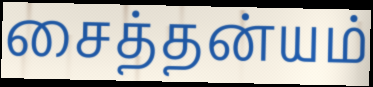
சைத்தன்யம்